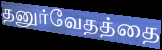
தனுர்வேதத்தை